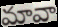
మావా